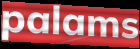
palams